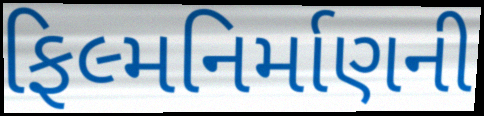
ફિલ્મનિર્માણની